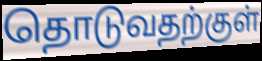
தொடுவதற்குள்